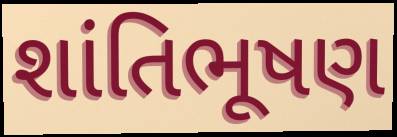
શાંતિભૂષણ